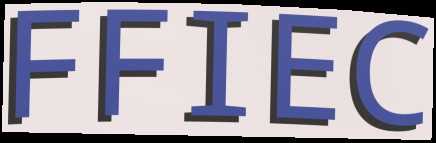
FFIEC